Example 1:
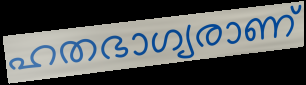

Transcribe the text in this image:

ഹതഭാഗ്യരാണ്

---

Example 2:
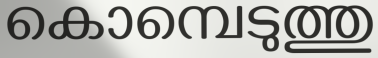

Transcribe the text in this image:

കൊമ്പെടുത്തു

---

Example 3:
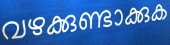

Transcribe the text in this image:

വഴക്കുണ്ടാക്കുക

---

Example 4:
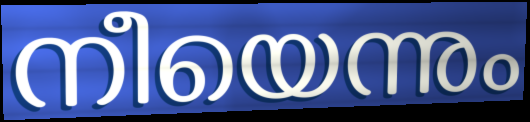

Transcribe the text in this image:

നീയെന്നും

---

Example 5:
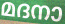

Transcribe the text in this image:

മദനാ